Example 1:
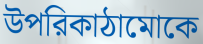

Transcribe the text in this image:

উপরিকাঠামোকে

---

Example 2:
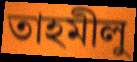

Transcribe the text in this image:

তাহমীলু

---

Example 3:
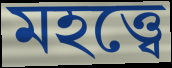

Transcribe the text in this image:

মহত্ত্বে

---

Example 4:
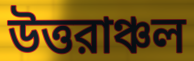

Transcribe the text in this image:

উত্তরাঞ্চল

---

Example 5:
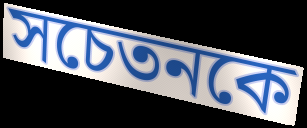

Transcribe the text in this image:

সচেতনকে